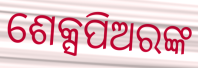
ଶେକ୍ସପିଅରଙ୍କ